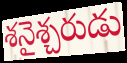
శనైశ్చరుడు